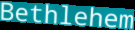
Bethlehem